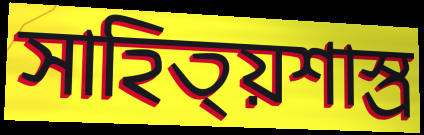
সাহিত্য়শাস্ত্ৰ